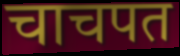
चाचपत